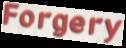
Forgery